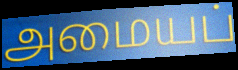
அமையப்